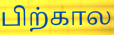
பிற்கால